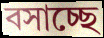
বসাচ্ছে